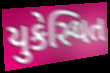
યુકેસ્થિત